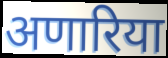
अणारिया